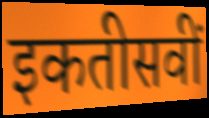
इकतीसवीं